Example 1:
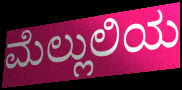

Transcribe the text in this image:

ಮೆಲ್ಲುಲಿಯ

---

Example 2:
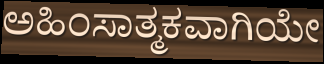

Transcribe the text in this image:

ಅಹಿಂಸಾತ್ಮಕವಾಗಿಯೇ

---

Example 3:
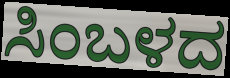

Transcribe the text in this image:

ಸಿಂಬಳದ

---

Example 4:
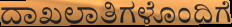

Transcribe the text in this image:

ದಾಖಲಾತಿಗಳೊಂದಿಗೆ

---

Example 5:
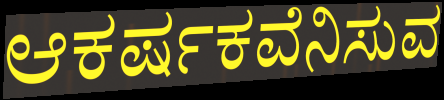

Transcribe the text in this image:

ಆಕರ್ಷಕವೆನಿಸುವ